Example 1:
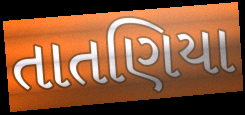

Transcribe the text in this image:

તાતણિયા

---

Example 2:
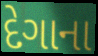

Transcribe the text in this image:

દેગાના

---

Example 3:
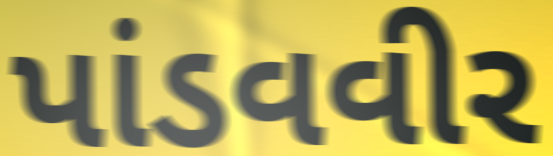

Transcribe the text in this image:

પાંડવવીર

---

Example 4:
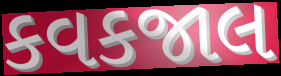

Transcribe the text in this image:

કવકજાલ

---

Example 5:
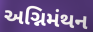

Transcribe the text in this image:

અગ્નિમંથન